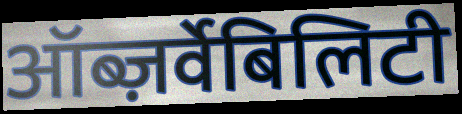
ऑब्ज़र्वेबिलिटी